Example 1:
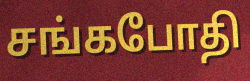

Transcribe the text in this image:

சங்கபோதி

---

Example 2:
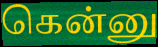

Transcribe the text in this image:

கென்னு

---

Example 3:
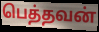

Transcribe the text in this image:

பெத்தவன்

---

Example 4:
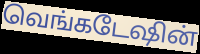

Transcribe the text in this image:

வெங்கடேஷின்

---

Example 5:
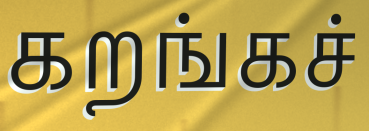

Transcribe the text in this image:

கறங்கச்